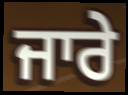
ਜਾਰੇ